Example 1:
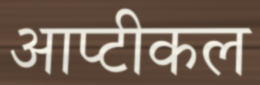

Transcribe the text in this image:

आप्टीकल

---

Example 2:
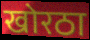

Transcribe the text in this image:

खोरठा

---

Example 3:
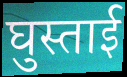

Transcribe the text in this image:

घुस्ताई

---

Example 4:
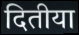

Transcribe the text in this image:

दितीया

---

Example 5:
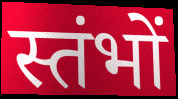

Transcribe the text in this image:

स्तंभों